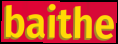
baithe